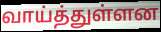
வாய்த்துள்ளன